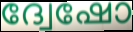
ദ്വേഷോ